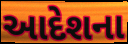
આદેશના